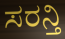
ಸರನ್ತಿ